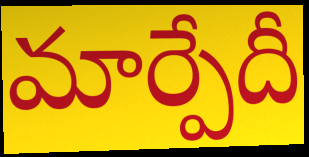
మార్పేదీ